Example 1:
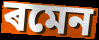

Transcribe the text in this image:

ৰমেন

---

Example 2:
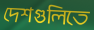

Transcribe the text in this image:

দেশগুলিতে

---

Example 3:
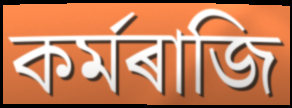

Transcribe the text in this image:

কৰ্মৰাজি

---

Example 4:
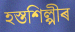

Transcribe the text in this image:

হস্তশিল্পীৰ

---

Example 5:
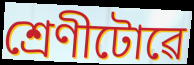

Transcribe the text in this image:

শ্ৰেণীটোৱে